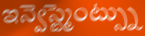
ఇన్వెస్ట్మెంట్స్ను